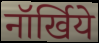
नॉर्खिये